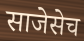
साजेसेच